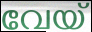
വേയ്